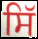
ਸਿੱ